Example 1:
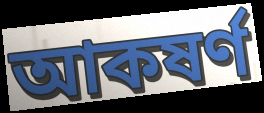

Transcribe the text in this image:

আকষৰ্ণ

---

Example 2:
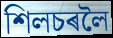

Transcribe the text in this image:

শিলচৰলৈ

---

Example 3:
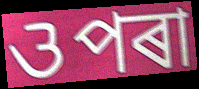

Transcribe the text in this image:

ওপৰা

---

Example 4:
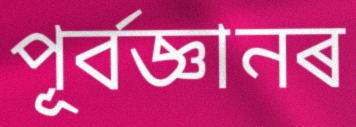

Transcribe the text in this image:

পূৰ্বজ্ঞানৰ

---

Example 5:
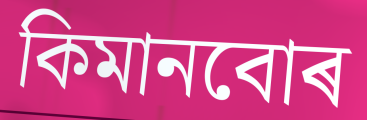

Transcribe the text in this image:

কিমানবোৰ